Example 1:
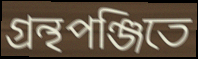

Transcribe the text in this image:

গ্রন্থপঞ্জিতে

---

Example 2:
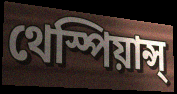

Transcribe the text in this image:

থেস্পিয়ান্স্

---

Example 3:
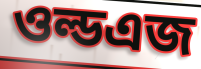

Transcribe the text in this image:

ওল্ডএজ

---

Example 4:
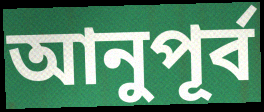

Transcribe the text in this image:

আনুপূর্ব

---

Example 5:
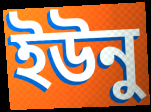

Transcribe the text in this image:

ইউনু